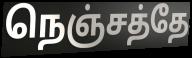
நெஞ்சத்தே